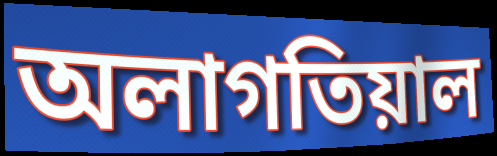
অলাগতিয়াল